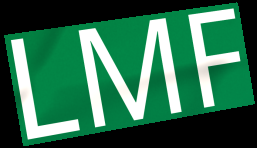
LMF